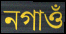
নগাওঁ